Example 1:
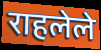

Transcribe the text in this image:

राहलेले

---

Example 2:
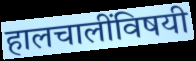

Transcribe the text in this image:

हालचालींविषयी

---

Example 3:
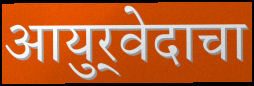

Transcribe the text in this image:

आयुर्वेदाचा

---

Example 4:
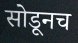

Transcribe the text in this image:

सोडूनच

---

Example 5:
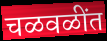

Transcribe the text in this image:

चळवळींत